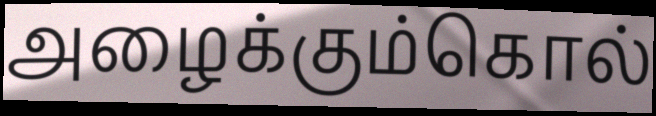
அழைக்கும்கொல்